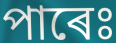
পাৰেঃ